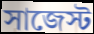
সাজেস্ট